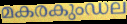
മകരകുംഡല